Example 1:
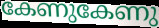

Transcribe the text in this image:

കേണുകേണു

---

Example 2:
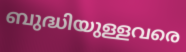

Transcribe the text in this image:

ബുദ്ധിയുള്ളവരെ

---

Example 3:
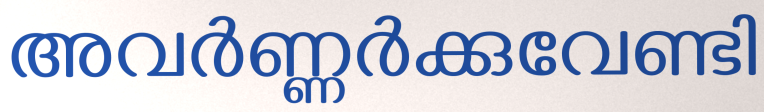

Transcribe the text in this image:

അവർണ്ണർക്കുവേണ്ടി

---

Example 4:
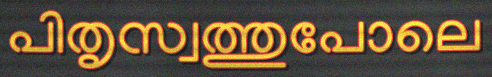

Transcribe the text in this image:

പിതൃസ്വത്തുപോലെ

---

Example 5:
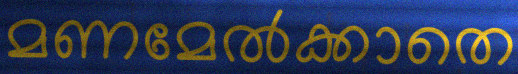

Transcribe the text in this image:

മണമേൽക്കാതെ